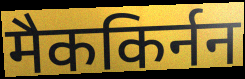
मैककिर्नन